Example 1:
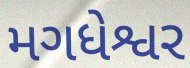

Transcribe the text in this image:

મગધેશ્વર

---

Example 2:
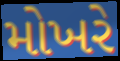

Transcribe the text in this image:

મોખરે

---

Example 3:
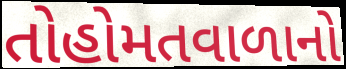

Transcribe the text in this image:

તોહોમતવાળાનો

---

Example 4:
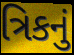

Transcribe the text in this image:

ત્રિકનું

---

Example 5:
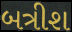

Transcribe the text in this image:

બત્રીશ